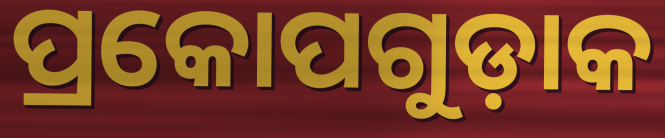
ପ୍ରକୋପଗୁଡ଼ାକ